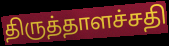
திருத்தாளச்சதி